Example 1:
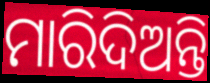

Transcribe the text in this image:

ମାରିଦିଅନ୍ତି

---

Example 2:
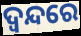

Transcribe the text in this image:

ଦ୍ଵନ୍ଦରେ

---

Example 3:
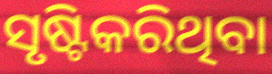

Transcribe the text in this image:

ସୃଷ୍ଟିକରିଥିବା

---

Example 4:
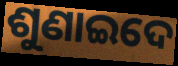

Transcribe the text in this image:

ଶୁଣାଇଦେ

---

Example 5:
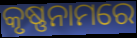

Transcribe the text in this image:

କୃଷ୍ଣନାମରେ